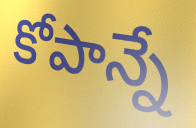
కోపాన్నే